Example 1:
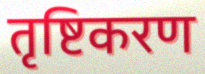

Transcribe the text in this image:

तृष्टिकरण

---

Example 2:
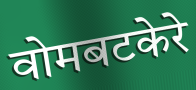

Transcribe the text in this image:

वोमबटकेरे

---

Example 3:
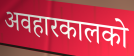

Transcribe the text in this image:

अवहारकालको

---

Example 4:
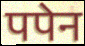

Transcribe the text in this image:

पपेन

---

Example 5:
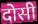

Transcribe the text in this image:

दोसी